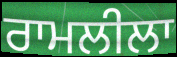
ਰਾਮਲੀਲਾ